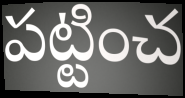
పట్టించ